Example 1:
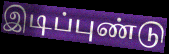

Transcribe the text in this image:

இடிப்புண்டு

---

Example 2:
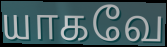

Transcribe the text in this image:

யாகவே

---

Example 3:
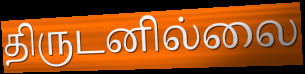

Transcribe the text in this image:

திருடனில்லை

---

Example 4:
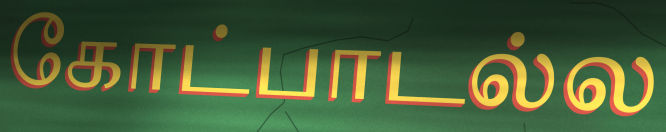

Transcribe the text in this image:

கோட்பாடல்ல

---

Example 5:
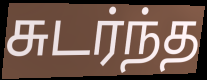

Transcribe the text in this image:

சுடர்ந்த